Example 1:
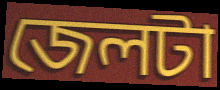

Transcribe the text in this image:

জেলটা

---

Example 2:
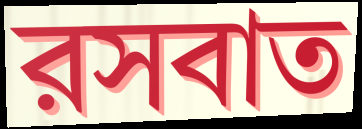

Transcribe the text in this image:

রসবাত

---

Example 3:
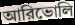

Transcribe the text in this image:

আরিভোলি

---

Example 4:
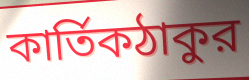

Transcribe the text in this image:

কার্তিকঠাকুর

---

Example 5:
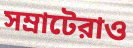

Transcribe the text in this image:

সম্রাটেরাও